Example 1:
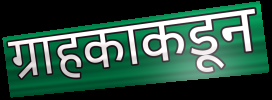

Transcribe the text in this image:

ग्राहकाकडून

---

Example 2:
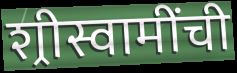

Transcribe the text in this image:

श्रीस्वामींची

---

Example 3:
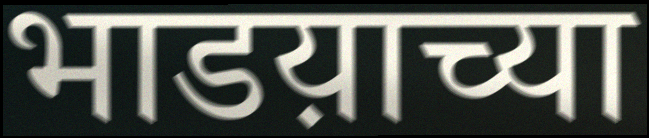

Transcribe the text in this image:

भाडय़ाच्या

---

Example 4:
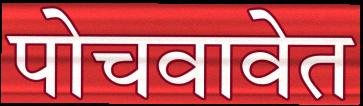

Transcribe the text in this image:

पोचवावेत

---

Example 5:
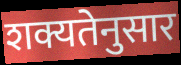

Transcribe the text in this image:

शक्यतेनुसार